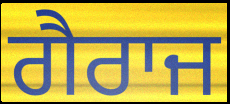
ਗੈਰਾਜ